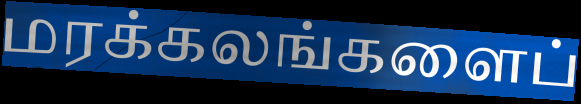
மரக்கலங்களைப்